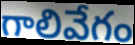
గాలివేగం